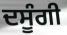
ਦਸੂੰਗੀ